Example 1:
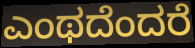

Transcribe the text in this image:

ಎಂಥದೆಂದರೆ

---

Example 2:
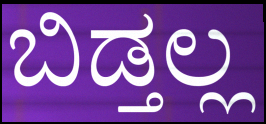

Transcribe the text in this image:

ಬಿಡ್ತಲ್ಲ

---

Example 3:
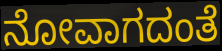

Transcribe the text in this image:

ನೋವಾಗದಂತೆ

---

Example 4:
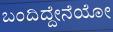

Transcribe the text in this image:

ಬಂದಿದ್ದೇನೆಯೋ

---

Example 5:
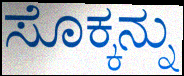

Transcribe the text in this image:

ಸೊಕ್ಕನ್ನು